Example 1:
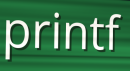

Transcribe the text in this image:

printf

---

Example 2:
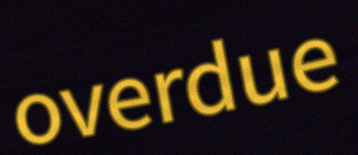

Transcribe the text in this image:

overdue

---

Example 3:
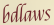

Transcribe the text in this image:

bdlaws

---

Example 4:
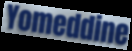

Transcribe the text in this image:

Yomeddine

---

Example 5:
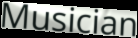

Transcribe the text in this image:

Musician